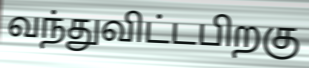
வந்துவிட்டபிறகு